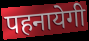
पहनायेगी